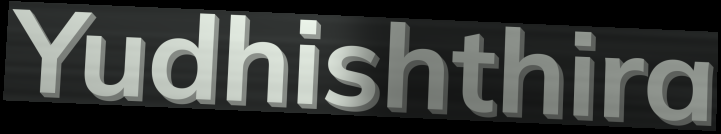
Yudhishthira